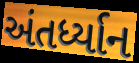
અંતર્ધ્યાન